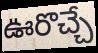
ఊరొచ్చే